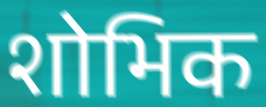
शोभिक